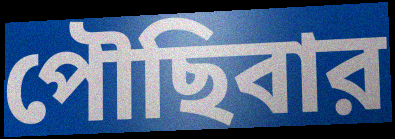
পৌছিবার